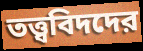
তত্ত্ববিদদের